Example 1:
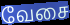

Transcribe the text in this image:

வேசை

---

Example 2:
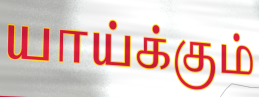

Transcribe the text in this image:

யாய்க்கும்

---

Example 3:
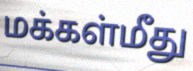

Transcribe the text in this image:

மக்கள்மீது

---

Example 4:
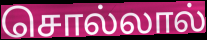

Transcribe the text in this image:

சொல்லால்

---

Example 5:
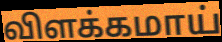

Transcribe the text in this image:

விளக்கமாய்